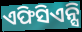
ଏଫିସିଏନ୍ସି